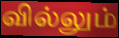
வில்லும்